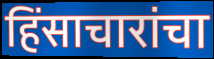
हिंसाचारांचा